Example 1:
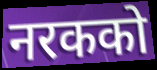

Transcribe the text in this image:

नरकको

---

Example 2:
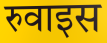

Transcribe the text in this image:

रुवाइस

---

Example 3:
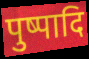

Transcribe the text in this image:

पुष्पादि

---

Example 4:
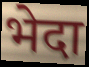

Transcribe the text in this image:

भेदा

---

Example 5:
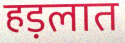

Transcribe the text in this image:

हड़लात